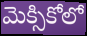
మెక్సికోలో